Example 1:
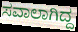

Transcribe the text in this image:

ಸವಾಲಾಗಿದ್ದ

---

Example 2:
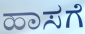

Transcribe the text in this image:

ಹಾಸಗೆ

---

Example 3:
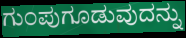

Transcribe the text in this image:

ಗುಂಪುಗೂಡುವುದನ್ನು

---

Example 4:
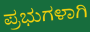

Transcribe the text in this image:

ಪ್ರಭುಗಳಾಗಿ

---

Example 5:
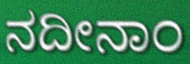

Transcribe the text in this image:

ನದೀನಾಂ